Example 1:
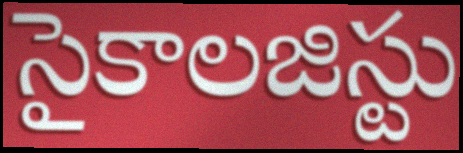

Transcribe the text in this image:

సైకాలజిస్టు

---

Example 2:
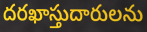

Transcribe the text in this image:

దరఖాస్తుదారులను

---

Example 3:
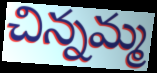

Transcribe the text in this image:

చిన్నమ్మ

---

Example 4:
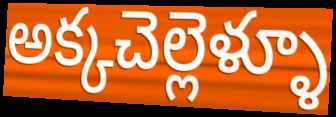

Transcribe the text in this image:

అక్కచెల్లెళ్ళూ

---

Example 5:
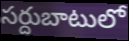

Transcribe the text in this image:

సర్దుబాటులో